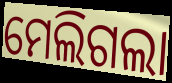
ମେଲିଗଲା